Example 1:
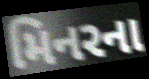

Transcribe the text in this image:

મિનરના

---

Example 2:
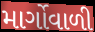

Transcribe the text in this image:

માર્ગોવાળી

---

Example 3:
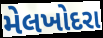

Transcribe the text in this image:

મેલખોદરા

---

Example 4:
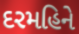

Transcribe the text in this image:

દરમહિને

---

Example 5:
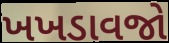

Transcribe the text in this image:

ખખડાવજો